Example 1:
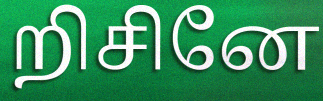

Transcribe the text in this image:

றிசினே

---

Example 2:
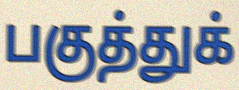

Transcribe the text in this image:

பகுத்துக்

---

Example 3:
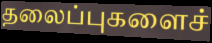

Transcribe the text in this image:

தலைப்புகளைச்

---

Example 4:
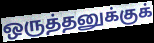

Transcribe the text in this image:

ஒருத்தனுக்குக்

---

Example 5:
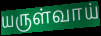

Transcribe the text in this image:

யருள்வாய்